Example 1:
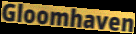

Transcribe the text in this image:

Gloomhaven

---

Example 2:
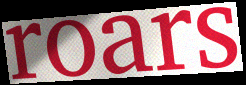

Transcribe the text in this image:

roars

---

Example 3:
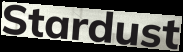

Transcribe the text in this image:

Stardust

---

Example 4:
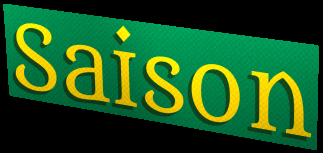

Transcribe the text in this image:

Saison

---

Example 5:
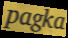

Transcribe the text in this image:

pagka